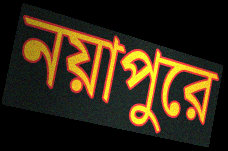
নয়াপুরে